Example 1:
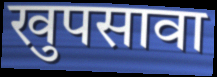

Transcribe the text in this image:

खुपसावा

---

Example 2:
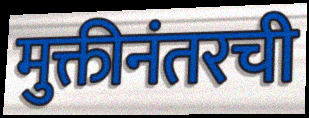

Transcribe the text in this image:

मुक्तीनंतरची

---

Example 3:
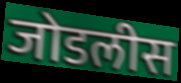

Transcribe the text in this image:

जोडलीस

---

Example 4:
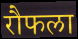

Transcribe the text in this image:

रौफला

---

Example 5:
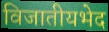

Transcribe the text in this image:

विजातीयभेद